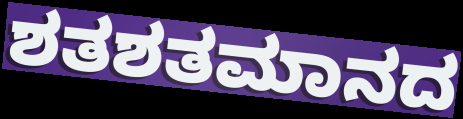
ಶತಶತಮಾನದ